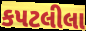
કપટલીલા